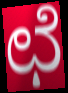
ಛೆ